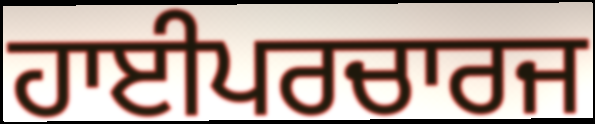
ਹਾਈਪਰਚਾਰਜ